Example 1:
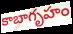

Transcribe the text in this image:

కాబాగృహం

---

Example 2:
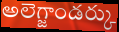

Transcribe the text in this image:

అలెగ్జాండర్కు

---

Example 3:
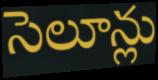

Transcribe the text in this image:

సెలూన్లు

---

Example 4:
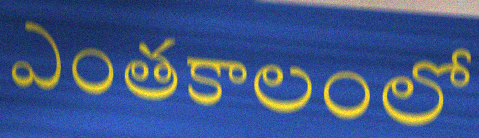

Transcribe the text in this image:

ఎంతకాలంలో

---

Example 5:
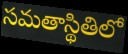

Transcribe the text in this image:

సమతాస్థితిలో